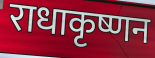
राधाकृष्णन